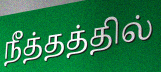
நீத்தத்தில்